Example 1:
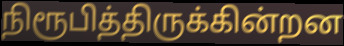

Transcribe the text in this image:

நிரூபித்திருக்கின்றன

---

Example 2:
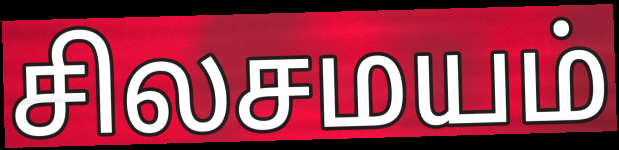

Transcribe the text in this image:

சிலசமயம்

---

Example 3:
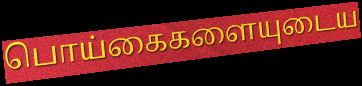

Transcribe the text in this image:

பொய்கைகளையுடைய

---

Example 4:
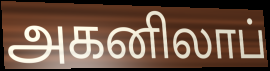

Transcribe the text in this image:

அகனிலாப்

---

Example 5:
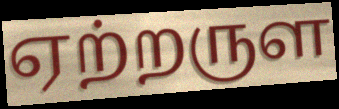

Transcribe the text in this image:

ஏற்றருள